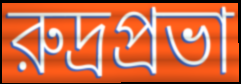
রুদ্রপ্রভা